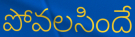
పోవలసిందే